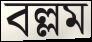
বল্লম